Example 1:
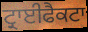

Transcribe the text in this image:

ਟ੍ਰਾਈਫੈਕਟਾ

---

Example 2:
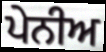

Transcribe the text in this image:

ਪੇਨੀਅ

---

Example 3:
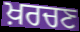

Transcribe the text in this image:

ਖ਼ਰਚਣ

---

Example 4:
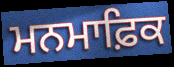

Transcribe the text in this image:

ਮਨਮਾਫ਼ਿਕ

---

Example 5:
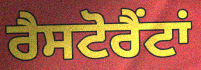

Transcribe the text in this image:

ਰੈਸਟੋਰੈਂਟਾਂ